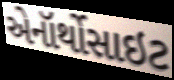
એનૉર્થોસાઇટ